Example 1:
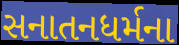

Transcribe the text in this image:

સનાતનધર્મના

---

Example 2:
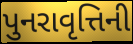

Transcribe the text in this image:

પુનરાવૃત્તિની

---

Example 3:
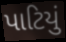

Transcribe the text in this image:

પાટિયું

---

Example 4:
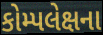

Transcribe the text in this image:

કોમ્પલેક્ષના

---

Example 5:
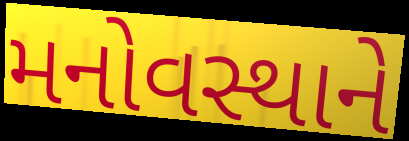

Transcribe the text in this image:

મનોવસ્થાને